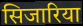
सिजारिया